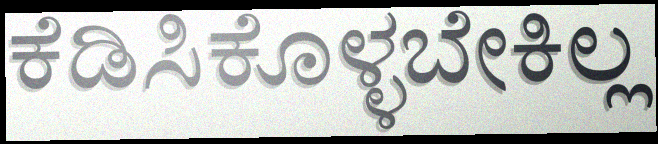
ಕೆಡಿಸಿಕೊಳ್ಳಬೇಕಿಲ್ಲ